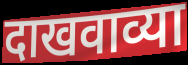
दाखवाव्या